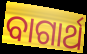
ବାଗାର୍ଥ